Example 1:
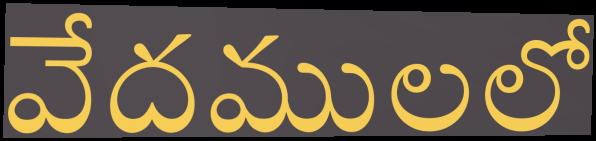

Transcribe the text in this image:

వేదములలో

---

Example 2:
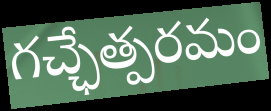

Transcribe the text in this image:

గచ్ఛేత్పరమం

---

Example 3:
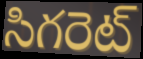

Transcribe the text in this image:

సిగరెట్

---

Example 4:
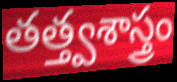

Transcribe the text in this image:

తత్త్వశాస్త్రం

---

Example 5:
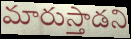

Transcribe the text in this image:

మారుస్తాడని